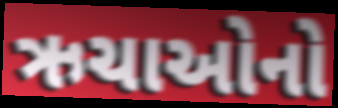
ઋચાઓનો